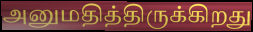
அனுமதித்திருக்கிறது